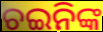
ଚଇନିଙ୍କ